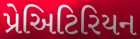
પ્રેઅિટિરિયન